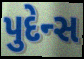
પુદેન્સ